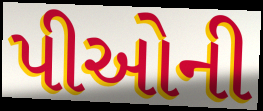
પીઓની